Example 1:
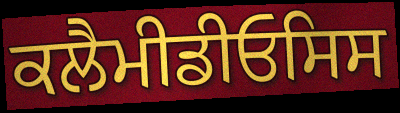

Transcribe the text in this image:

ਕਲੈਮੀਡੀਓਸਿਸ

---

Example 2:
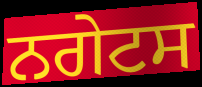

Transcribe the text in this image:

ਨਗੇਟਸ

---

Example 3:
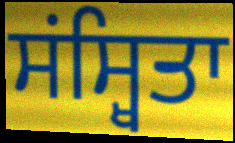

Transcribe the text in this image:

ਸਂਸ੍ਥਿਤਾ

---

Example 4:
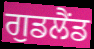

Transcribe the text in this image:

ਗੁਡਲੈਂਡ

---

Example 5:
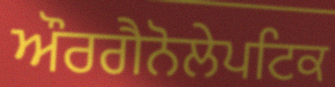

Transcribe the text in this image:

ਔਰਗੈਨੋਲੇਪਟਿਕ